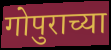
गोपुराच्या